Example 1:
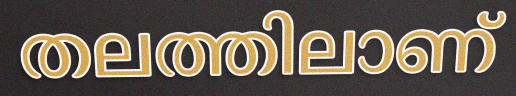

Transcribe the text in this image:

തലത്തിലാണ്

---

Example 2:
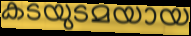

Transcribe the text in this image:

കടയുടമയായ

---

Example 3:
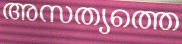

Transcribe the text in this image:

അസത്യത്തെ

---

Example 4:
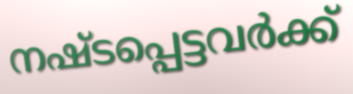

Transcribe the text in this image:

നഷ്ടപ്പെട്ടവർക്ക്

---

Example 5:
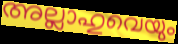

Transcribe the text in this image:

അല്ലാഹുവെയും